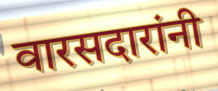
वारसदारांनी